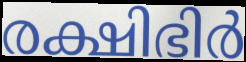
രക്ഷിഭിർ